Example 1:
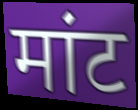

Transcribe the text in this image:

मांट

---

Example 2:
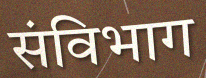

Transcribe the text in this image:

संविभाग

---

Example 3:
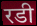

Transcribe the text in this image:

रडी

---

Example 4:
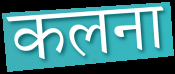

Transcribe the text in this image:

कलना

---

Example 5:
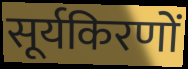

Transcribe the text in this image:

सूर्यकिरणों